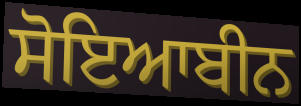
ਸੋਇਆਬੀਨ